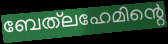
ബേത്‌ലഹേമിന്റെ